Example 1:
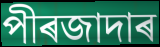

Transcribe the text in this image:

পীৰজাদাৰ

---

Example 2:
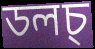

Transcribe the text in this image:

ডলচ্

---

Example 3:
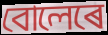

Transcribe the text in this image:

বোলেৰে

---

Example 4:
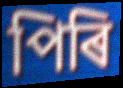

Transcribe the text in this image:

পিৰি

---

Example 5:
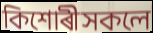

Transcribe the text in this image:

কিশোৰীসকলে